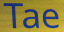
Tae